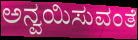
ಅನ್ವಯಿಸುವಂತೆ